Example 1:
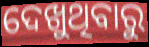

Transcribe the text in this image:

ଦେଖୁଥିବାରୁ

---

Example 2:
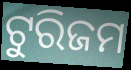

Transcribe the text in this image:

ଟୁରିଜମ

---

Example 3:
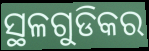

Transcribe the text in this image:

ସ୍ଥଳଗୁଡିକର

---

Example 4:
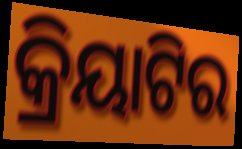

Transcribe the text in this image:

କ୍ରିୟାଟିର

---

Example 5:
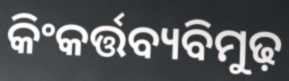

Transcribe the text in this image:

କିଂକର୍ତ୍ତବ୍ୟବିମୁଢ଼